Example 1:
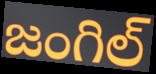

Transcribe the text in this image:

జంగిల్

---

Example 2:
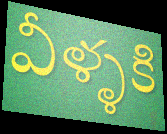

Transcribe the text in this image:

వీళ్ళకి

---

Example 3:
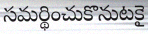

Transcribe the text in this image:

సమర్థించుకొనుటకై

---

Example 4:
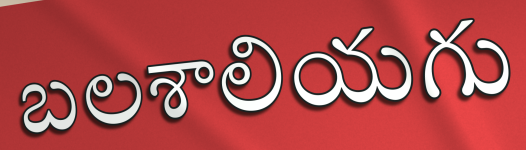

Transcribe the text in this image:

బలశాలియగు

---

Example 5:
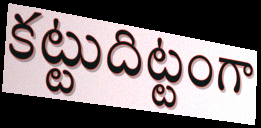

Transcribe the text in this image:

కట్టుదిట్టంగా